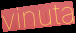
vinuta